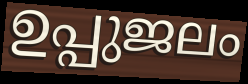
ഉപ്പുജലം